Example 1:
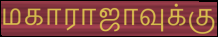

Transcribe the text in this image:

மகாராஜாவுக்கு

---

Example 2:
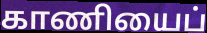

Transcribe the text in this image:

காணியைப்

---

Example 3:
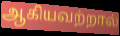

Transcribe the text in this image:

ஆகியவற்றால்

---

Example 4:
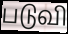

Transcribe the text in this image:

படுவி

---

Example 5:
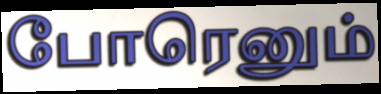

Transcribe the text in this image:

போரெனும்